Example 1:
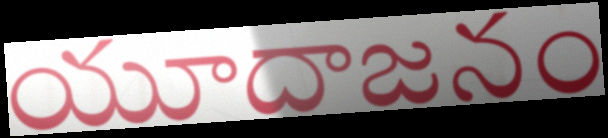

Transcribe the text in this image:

యూదాజనం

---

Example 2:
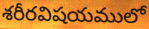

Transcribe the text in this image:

శరీరవిషయములో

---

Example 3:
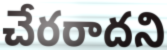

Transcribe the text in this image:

చేరరాదని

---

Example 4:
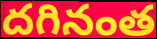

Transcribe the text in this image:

దగినంత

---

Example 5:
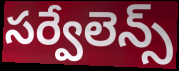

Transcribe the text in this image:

సర్వేలెన్స్